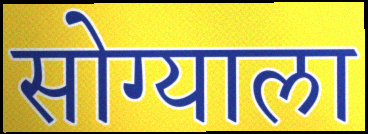
सोग्याला